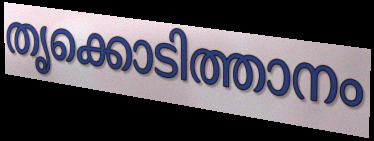
തൃക്കൊടിത്താനം